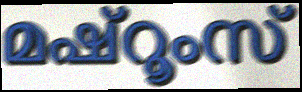
മഷ്റൂംസ്